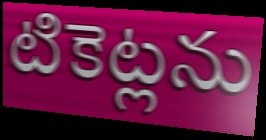
టికెట్లను